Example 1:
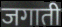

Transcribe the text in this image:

जगाती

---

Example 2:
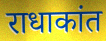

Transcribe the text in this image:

राधाकांत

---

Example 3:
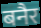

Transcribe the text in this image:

बनैर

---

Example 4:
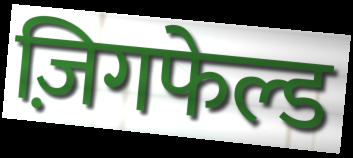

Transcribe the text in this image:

ज़िगफेल्ड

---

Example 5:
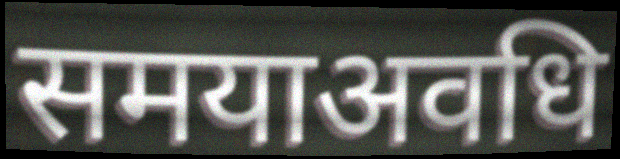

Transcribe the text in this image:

समयाअवधि